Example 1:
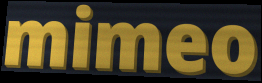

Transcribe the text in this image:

mimeo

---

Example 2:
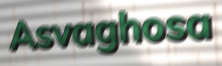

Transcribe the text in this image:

Asvaghosa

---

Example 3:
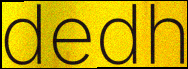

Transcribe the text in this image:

dedh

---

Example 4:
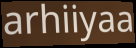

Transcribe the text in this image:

arhiiyaa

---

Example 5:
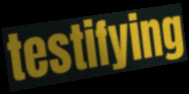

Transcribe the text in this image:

testifying